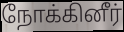
நோக்கினீர்